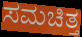
ಸಮಚಿತ್ತ